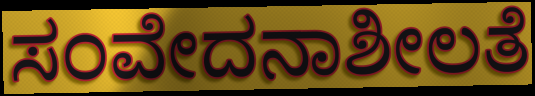
ಸಂವೇದನಾಶೀಲತೆ